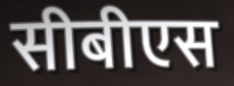
सीबीएस